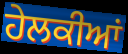
ਹੇਲਕੀਆਂ